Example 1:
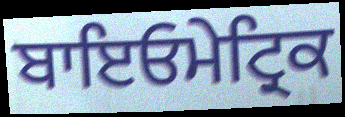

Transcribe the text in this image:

ਬਾਇਓਮੇਟ੍ਰਿਕ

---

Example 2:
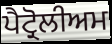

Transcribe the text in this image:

ਪੈਟ੍ਰੋਲੀਅਮ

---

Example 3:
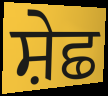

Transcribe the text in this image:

ਸ਼ੇਛ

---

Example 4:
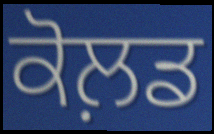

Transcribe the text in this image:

ਕੋਲ਼ਡ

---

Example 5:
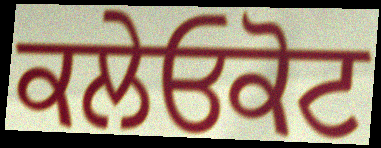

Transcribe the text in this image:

ਕਲੇਓਕੋਟ